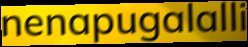
nenapugalalli